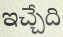
ఇచ్చేది